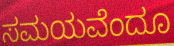
ಸಮಯವೆಂದೂ